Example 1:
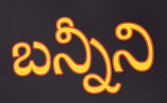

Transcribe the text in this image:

బన్నీని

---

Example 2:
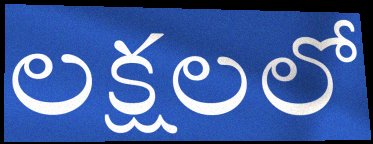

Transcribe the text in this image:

లక్షలలో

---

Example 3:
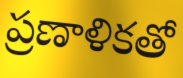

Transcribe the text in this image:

ప్రణాళికతో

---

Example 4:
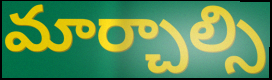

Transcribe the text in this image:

మార్చాల్సి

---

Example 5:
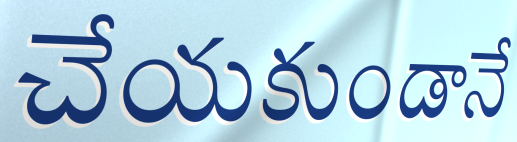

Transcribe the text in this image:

చేయకుండానే